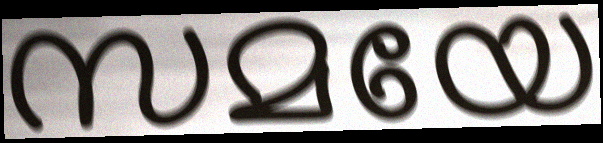
സമയേ